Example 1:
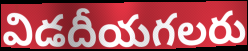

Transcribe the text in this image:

విడదీయగలరు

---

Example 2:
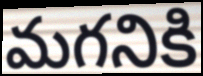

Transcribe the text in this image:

మగనికి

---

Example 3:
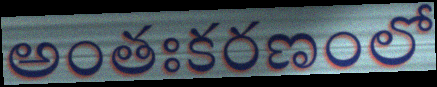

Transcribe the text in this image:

అంతఃకరణంలో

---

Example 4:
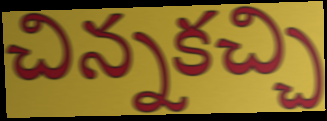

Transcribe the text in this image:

చిన్నకచ్చి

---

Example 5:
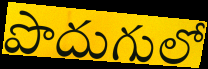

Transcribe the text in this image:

పొదుగులో